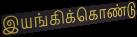
இயங்கிக்கொண்டு